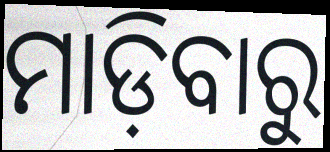
ମାଡ଼ିବାରୁ